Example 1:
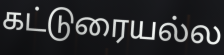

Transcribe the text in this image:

கட்டுரையல்ல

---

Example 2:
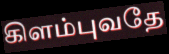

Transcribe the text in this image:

கிளம்புவதே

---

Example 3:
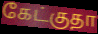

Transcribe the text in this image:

கேட்குதா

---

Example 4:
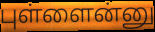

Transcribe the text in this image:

புள்ளைன்னு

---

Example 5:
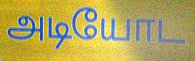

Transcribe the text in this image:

அடியோட